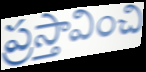
ప్రస్తావించి